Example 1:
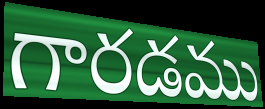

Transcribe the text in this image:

గారడము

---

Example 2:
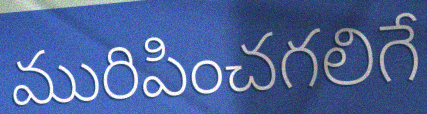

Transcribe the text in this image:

మురిపించగలిగే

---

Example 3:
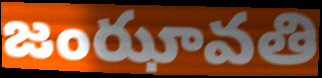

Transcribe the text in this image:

జంఝావతి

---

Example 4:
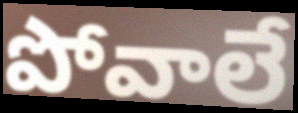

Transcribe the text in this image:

పోవాలే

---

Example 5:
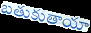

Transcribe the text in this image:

బతుకుతాయా